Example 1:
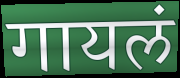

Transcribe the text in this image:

गायलं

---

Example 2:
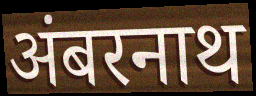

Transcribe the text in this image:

अंबरनाथ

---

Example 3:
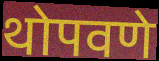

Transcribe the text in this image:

थोपवणे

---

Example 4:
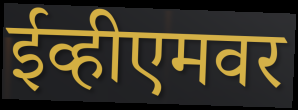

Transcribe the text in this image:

ईव्हीएमवर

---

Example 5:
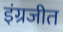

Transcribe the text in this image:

इंग्रजीत